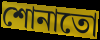
শোনাতো